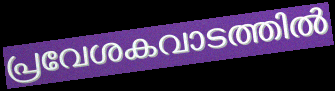
പ്രവേശകവാടത്തിൽ